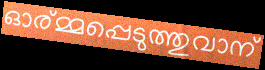
ഓര്മ്മപ്പെടുത്തുവാന്